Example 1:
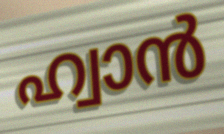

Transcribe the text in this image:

ഹ്വാൻ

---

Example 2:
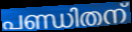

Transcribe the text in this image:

പണ്ഡിതന്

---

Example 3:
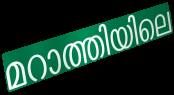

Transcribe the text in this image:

മറാത്തിയിലെ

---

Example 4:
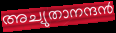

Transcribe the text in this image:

അച്യുതാനന്ദൻ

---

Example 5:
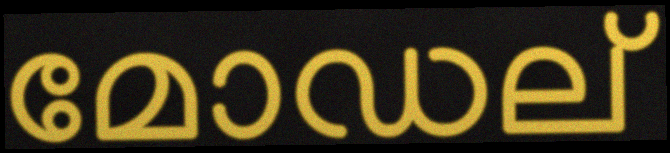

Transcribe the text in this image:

മോഡല്